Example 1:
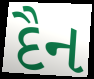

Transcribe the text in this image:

દૈન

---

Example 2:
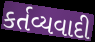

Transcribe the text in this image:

કર્તવ્યવાદી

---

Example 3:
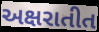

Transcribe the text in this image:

અક્ષરાતીત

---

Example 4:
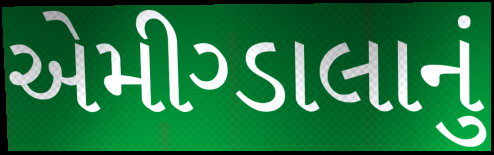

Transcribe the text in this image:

એમીગ્ડાલાનું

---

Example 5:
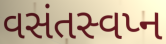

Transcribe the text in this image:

વસંતસ્વપ્ન